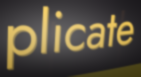
plicate